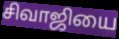
சிவாஜியை